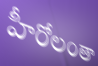
హీరోలంతా